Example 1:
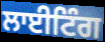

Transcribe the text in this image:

ਲਾਈਟਿੰਗ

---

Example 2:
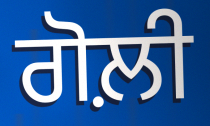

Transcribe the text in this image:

ਗੋਲ਼ੀ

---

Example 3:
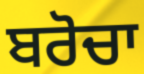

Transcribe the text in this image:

ਬਰੋਚਾ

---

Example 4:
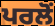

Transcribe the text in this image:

ਪਰਲੋਂ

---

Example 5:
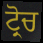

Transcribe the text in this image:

ਟ੍ਰੋਚ